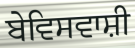
ਬੇਵਿਸਵਾਸ਼ੀ